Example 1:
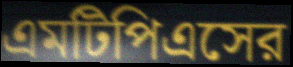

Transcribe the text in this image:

এমটিপিএসের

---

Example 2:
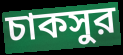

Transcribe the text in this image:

চাকসুর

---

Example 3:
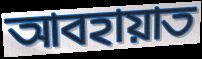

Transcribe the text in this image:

আবহায়াত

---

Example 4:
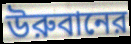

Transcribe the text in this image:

উরুবানের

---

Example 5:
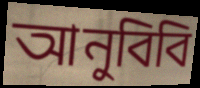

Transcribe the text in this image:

আনুবিবি